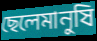
ছেলেমানুষি